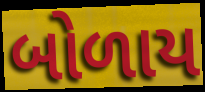
બોળાય